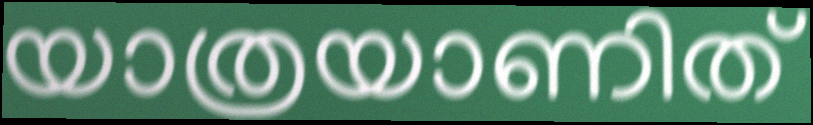
യാത്രയാണിത്